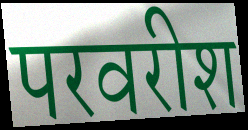
परवरीश